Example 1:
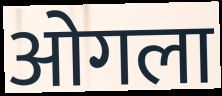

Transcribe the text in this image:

ओगला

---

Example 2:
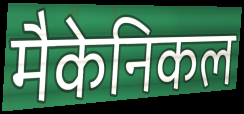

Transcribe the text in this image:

मैकेनिकल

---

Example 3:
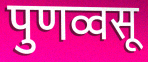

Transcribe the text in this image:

पुणव्वसू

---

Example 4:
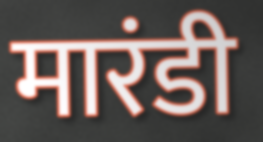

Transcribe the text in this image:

मारंडी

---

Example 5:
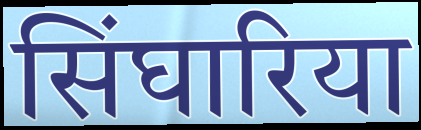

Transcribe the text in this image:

सिंघारिया